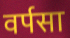
वर्पसा